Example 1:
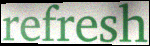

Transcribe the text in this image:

refresh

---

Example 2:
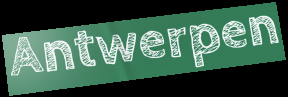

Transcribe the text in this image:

Antwerpen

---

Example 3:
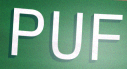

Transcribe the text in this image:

PUF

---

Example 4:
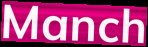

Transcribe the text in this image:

Manch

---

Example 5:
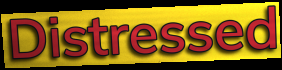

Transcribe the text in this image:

Distressed